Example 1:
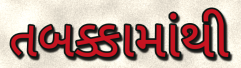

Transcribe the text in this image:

તબક્કામાંથી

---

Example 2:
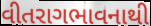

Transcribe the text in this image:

વીતરાગભાવનાથી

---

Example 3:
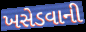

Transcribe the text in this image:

ખસેડવાની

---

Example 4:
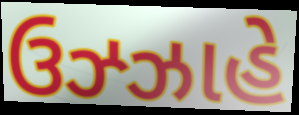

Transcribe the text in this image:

ઉઝ્ઝાહે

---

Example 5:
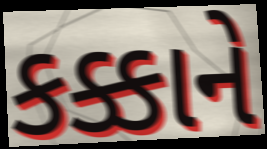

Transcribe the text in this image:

કક્કાને